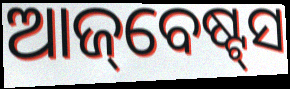
ଆଜ୍‌ବେଷ୍ଟ୍‌ସ